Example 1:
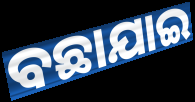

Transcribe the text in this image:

ବଛାଯାଇ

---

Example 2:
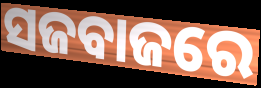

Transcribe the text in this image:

ସଜବାଜରେ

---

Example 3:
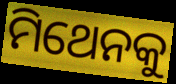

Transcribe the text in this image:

ମିଥେନକୁ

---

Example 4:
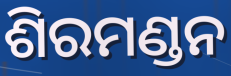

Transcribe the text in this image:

ଶିରମଣ୍ଡନ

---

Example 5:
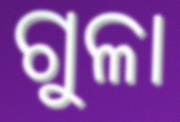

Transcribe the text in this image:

ଗୁଳା